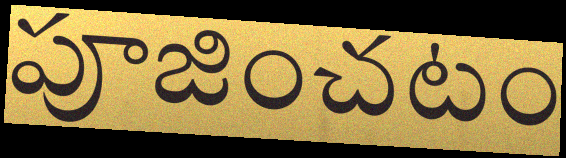
పూజించటం